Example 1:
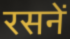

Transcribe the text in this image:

रसनें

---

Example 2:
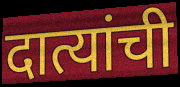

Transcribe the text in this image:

दात्यांची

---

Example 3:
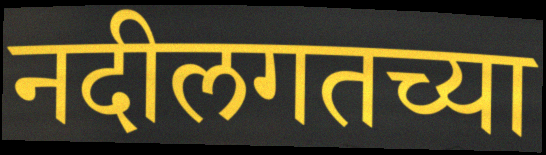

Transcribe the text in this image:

नदीलगतच्या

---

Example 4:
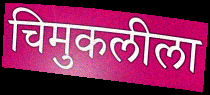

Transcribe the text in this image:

चिमुकलीला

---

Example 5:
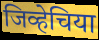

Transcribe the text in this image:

जिव्हेचिया